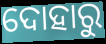
ଦୋହାରୁ